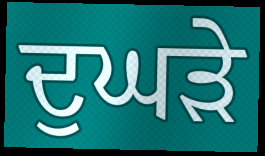
ਦੁਘੜੇ